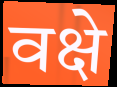
वक्षे